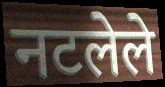
नटलेले